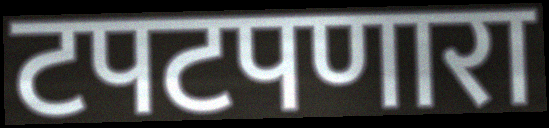
टपटपणारा